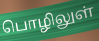
பொழிலுள்